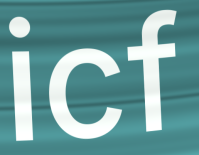
icf